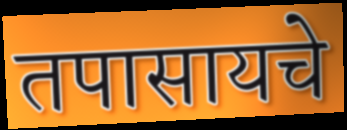
तपासायचे